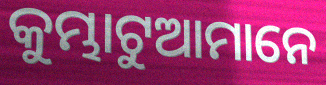
କୁମ୍ଭାଟୁଆମାନେ